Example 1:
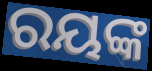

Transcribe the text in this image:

ରୟଙ୍କ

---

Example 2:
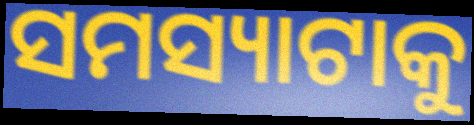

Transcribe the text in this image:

ସମସ୍ୟାଟାକୁ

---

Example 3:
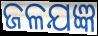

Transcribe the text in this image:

ଜଳଯଜ୍ଞ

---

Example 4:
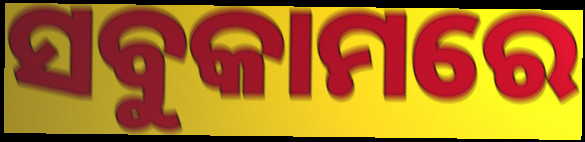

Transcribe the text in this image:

ସବୁକାମରେ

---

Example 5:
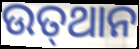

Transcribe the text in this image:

ଉତ୍‍ଥାନ